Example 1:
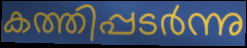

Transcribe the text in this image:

കത്തിപ്പടർന്നു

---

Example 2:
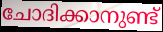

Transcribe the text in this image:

ചോദിക്കാനുണ്ട്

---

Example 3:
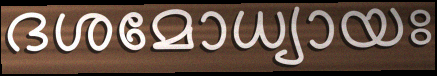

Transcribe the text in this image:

ദശമോധ്യായഃ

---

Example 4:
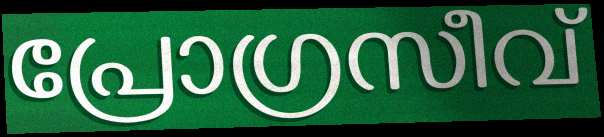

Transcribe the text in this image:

പ്രോഗ്രസീവ്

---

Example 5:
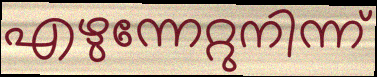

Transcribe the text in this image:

എഴുന്നേറ്റുനിന്ന്